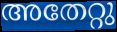
അതേറ്റു